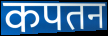
कपतन